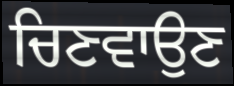
ਚਿਣਵਾਉਣ